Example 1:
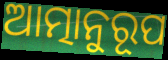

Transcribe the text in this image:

ଆତ୍ମାନୁରୂପ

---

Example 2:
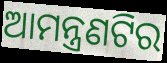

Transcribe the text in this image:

ଆମନ୍ତ୍ରଣଟିର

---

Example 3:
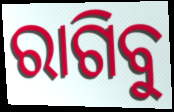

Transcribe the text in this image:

ରାଗିବୁ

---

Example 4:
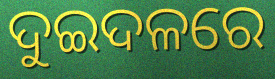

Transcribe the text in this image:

ଦୁଇଦଳରେ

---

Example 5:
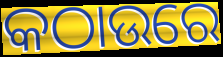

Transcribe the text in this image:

କଠାଉରେ